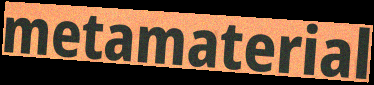
metamaterial